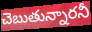
చెబుతున్నారనీ